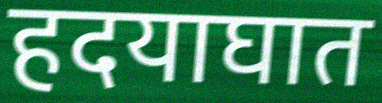
हदयाघात